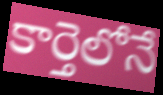
కార్తెలోనే